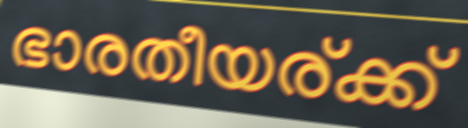
ഭാരതീയര്ക്ക്